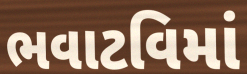
ભવાટવિમાં